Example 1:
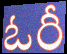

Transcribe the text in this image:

ఓరీ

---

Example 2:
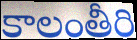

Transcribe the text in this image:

కాలంతీరి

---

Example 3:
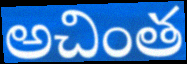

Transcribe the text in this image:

అచింత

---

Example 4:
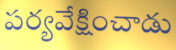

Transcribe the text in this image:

పర్యవేక్షించాడు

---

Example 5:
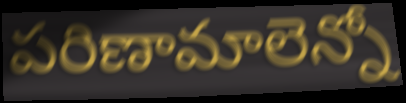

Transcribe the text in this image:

పరిణామాలెన్నో